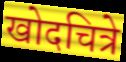
खोदचित्रे